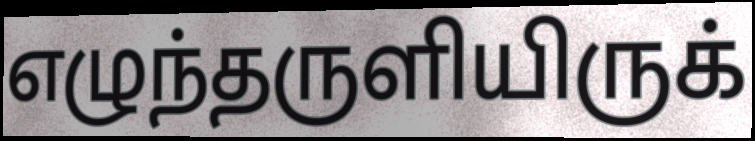
எழுந்தருளியிருக்